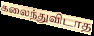
கலைந்துவிடாத